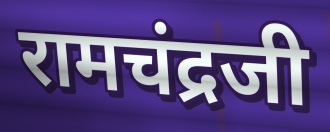
रामचंद्रजी